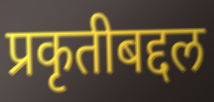
प्रकृतीबद्दल